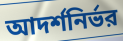
আদর্শনির্ভর